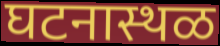
घटनास्थळ